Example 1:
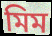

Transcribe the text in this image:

মিম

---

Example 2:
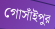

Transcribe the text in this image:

গোসাঁইপুর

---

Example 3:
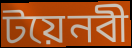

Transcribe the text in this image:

টয়েনবী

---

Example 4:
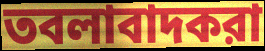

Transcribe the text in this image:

তবলাবাদকরা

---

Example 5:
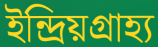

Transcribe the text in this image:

ইন্দ্রিয়গ্রাহ্য